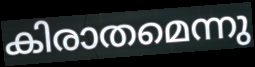
കിരാതമെന്നു